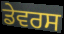
ਡੇਵਰਸ